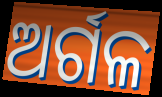
ଅର୍ଗଳ